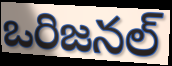
ఒరిజనల్